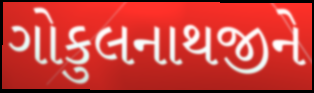
ગોકુલનાથજીને